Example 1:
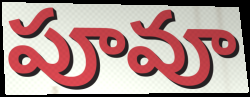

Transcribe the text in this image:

పూవూ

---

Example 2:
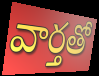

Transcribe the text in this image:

వార్తతో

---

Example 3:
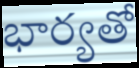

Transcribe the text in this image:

భార్యతో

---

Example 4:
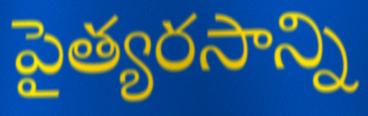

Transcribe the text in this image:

పైత్యరసాన్ని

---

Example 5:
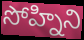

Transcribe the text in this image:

సోహ్నిని